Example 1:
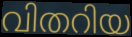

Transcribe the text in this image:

വിതറിയ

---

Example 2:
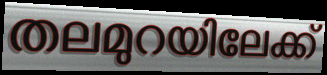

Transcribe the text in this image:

തലമുറയിലേക്ക്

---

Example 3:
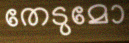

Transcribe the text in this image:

തേടുമോ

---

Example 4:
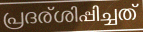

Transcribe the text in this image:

പ്രദര്ശിപ്പിച്ചത്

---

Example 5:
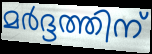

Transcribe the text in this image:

മർദ്ദത്തിന്